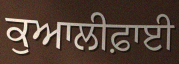
ਕੁਆਲੀਫ਼ਾਈ